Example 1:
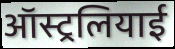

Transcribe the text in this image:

ऑस्ट्रलियाई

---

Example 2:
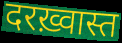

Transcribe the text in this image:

दरख़्वास्त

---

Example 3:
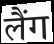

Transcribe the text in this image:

लैंग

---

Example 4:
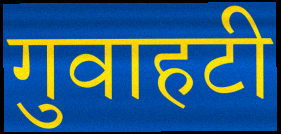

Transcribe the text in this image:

गुवाहटी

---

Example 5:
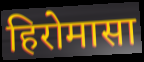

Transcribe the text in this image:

हिरोमासा